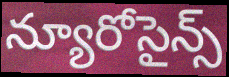
న్యూరోసైన్స్